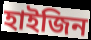
হাইজিন